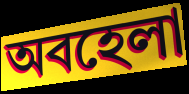
অবহেলা